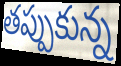
తప్పుకున్న